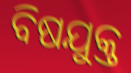
ବିଷଯୁକ୍ତ